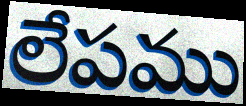
లేపము